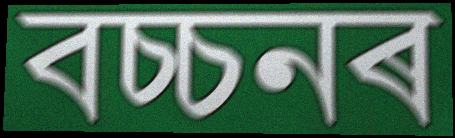
বচ্চনৰ